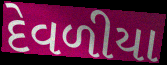
દેવળીયા